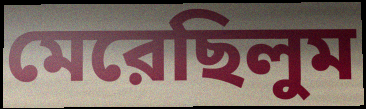
মেরেছিলুম